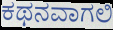
ಕಥನವಾಗಲಿ